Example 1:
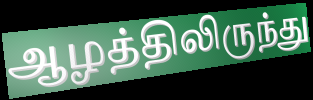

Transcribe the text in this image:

ஆழத்திலிருந்து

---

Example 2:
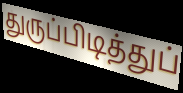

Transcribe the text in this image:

துருப்பிடித்துப்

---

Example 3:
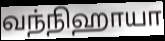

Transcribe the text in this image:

வந்நிஹாயா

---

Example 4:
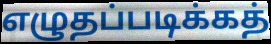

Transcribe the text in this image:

எழுதப்படிக்கத்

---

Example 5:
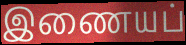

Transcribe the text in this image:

இணையப்